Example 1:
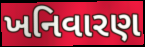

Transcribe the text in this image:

ખનિવારણ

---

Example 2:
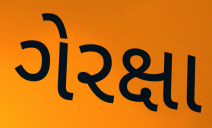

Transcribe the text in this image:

ગેરક્ષા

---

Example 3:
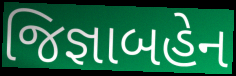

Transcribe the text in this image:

જિજ્ઞાબહેન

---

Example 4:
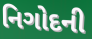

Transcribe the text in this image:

નિગોદની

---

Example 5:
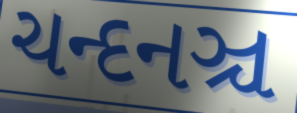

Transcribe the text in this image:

ચન્દનઞ્ચ